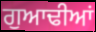
ਗੁਆਢੀਆਂ